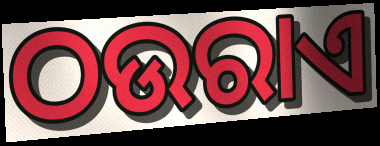
ଠଉରାଏ